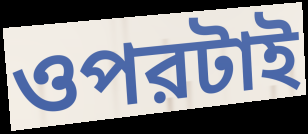
ওপরটাই